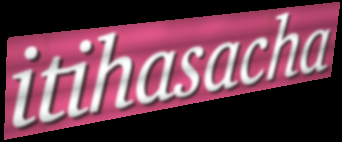
itihasacha